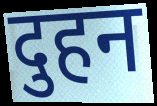
दुहन